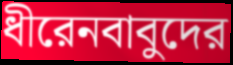
ধীরেনবাবুদের